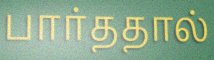
பார்ததால்